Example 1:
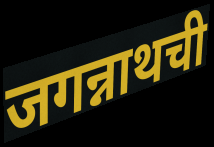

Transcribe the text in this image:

जगन्नाथची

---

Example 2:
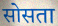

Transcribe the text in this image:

सोसता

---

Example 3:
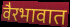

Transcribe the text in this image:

वैरभावात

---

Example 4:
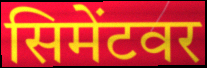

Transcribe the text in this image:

सिमेंटवर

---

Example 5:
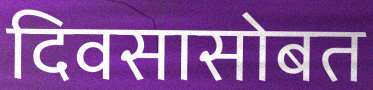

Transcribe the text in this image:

दिवसासोबत